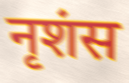
नृशंस